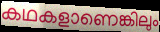
കഥകളാണെങ്കിലും